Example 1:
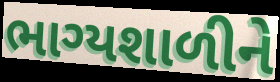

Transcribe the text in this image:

ભાગ્યશાળીને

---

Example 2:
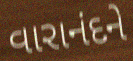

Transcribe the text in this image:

વારાનંદને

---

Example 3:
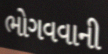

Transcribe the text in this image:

ભોગવવાની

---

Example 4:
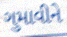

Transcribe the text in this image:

ગુમાવીને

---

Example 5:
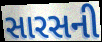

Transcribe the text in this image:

સારસની